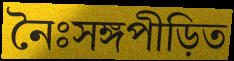
নৈঃসঙ্গপীড়িত